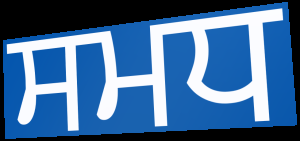
ਸਮਧ